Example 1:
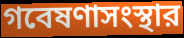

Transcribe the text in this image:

গবেষণাসংস্থার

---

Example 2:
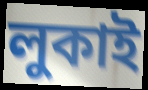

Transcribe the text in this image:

লুকাই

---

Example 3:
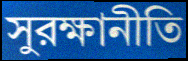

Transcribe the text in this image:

সুরক্ষানীতি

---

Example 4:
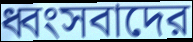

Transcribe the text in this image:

ধ্বংসবাদের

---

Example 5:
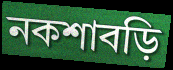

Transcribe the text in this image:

নকশাবড়ি